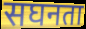
सघनता